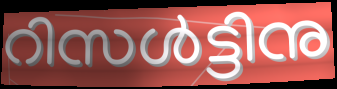
റിസൾട്ടിനു